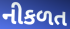
નીકળત